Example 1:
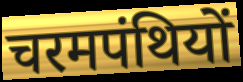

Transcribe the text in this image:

चरमपंथियों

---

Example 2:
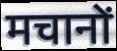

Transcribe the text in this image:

मचानों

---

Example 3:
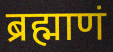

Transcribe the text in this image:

ब्रह्माणं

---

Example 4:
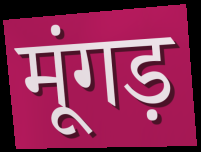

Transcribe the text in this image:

मूंगड़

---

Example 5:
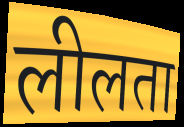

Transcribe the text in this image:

लीलता